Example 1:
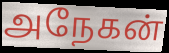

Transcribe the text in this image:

அநேகன்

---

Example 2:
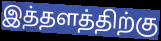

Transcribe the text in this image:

இத்தளத்திற்கு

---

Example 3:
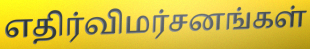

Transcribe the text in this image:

எதிர்விமர்சனங்கள்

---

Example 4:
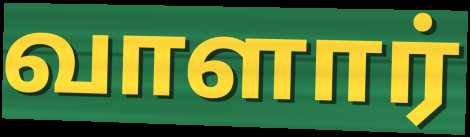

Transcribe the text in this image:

வாளார்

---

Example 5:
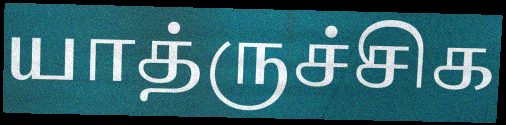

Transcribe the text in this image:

யாத்ருச்சிக